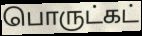
பொருட்கட்